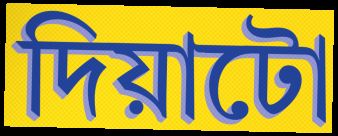
দিয়াটো